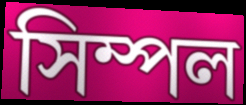
সিম্পল